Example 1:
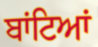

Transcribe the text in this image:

ਬਾਂਟਿਆਂ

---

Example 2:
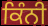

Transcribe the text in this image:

ਕਿੰਨੀ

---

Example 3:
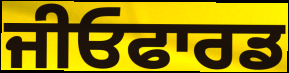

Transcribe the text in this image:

ਜੀਓਫਾਰਡ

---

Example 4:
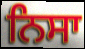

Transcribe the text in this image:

ਨਿਸਾ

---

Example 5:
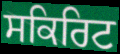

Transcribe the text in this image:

ਸਕਿਰਿਟ